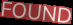
FOUND